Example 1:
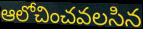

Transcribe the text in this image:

ఆలోచించవలసిన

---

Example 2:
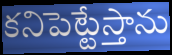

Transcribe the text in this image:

కనిపెట్టేస్తాను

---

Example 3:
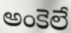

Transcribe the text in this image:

అంకెలే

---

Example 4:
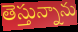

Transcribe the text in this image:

తెస్తున్నాను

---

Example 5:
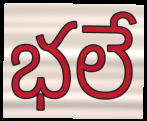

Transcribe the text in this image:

భలే